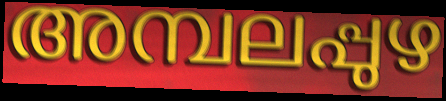
അമ്പലപ്പുഴ